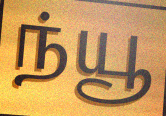
ந்யூ